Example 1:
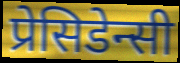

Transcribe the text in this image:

प्रेसिडेन्सी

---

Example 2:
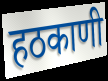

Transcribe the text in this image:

हठकाणी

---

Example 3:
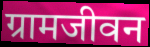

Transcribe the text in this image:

ग्रामजीवन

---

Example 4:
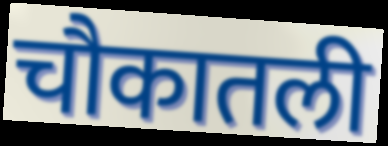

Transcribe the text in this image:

चौकातली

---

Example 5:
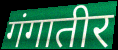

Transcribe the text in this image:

गंगातीर